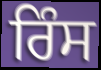
ਰਿੰਸ